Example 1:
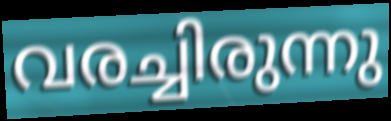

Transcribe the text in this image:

വരച്ചിരുന്നു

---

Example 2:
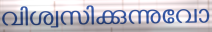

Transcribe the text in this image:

വിശ്വസിക്കുന്നുവോ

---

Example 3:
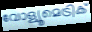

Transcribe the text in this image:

വോള്യൂമെട്രിക്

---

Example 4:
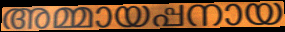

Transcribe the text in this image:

അമ്മായപ്പനായ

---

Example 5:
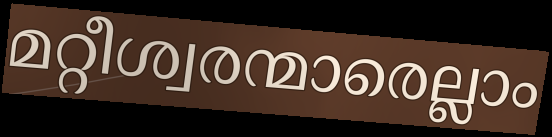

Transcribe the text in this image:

മറ്റീശ്വരന്മാരെല്ലാം